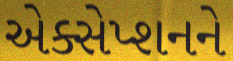
એક્સેપ્શનને